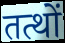
तत्थों